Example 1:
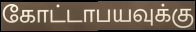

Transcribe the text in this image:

கோட்டாபயவுக்கு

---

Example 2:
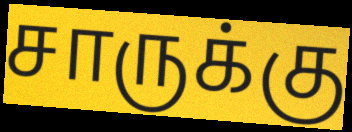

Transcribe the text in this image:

சாருக்கு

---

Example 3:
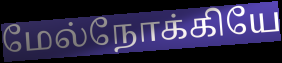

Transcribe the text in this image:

மேல்நோக்கியே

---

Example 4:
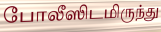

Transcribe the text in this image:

போலீஸிடமிருந்து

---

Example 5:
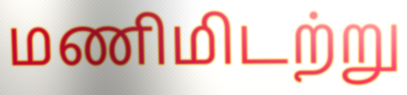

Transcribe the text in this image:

மணிமிடற்று